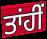
ਤਾਂਹੀਂ